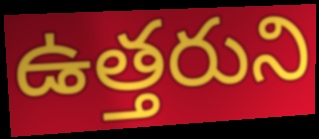
ఉత్తరుని